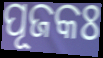
ପୂଜକଃ